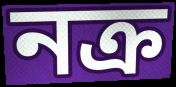
নক্র